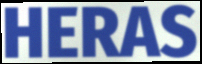
HERAS